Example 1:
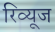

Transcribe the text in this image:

रिव्यूज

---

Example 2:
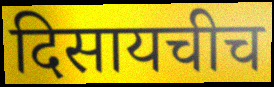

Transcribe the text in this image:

दिसायचीच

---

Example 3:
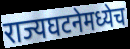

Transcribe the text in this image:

राज्यघटनेमध्येच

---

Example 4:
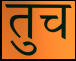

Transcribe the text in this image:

तुच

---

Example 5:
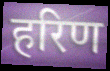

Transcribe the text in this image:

हरिण